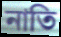
নাতি